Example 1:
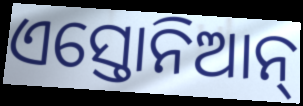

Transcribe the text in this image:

ଏସ୍ତୋନିଆନ୍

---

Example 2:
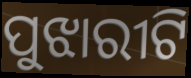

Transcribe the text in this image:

ପୁଝାରୀଟି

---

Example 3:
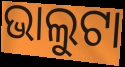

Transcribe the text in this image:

ଭାଲୁଟା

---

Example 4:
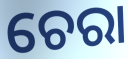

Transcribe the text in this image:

ଚେରା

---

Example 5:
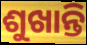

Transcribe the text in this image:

ଶୁଖାନ୍ତି